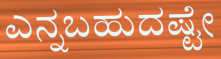
ಎನ್ನಬಹುದಷ್ಟೇ